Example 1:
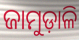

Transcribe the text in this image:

ଜାମୁଡ଼ାଳି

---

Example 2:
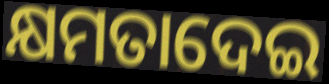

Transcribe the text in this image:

କ୍ଷମତାଦେଇ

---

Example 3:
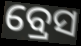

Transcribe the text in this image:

ବ୍ରେସ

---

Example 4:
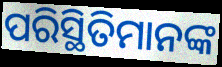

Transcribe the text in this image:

ପରିସ୍ଥିତିମାନଙ୍କ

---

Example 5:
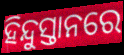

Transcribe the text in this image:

ହିନ୍ଦୁସ୍ତାନରେ